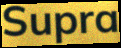
Supra